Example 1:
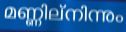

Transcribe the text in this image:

മണ്ണില്നിന്നും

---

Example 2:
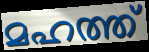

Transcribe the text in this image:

മഹത്ത്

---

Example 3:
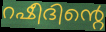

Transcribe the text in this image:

റഷീദിന്റെ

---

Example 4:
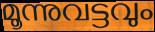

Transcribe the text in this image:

മൂന്നുവട്ടവും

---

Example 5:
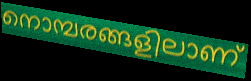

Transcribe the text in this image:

നൊമ്പരങ്ങളിലാണ്